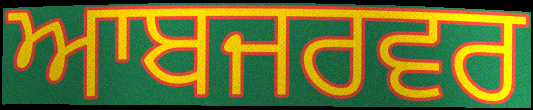
ਆਬਜਰਵਰ